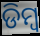
ଡିମ୍ଵ